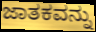
ಜಾತಕವನ್ನು